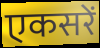
एकसरें